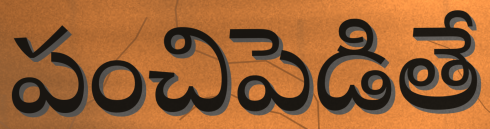
పంచిపెడితే